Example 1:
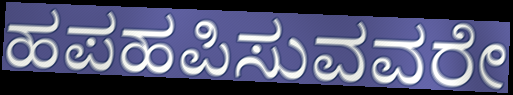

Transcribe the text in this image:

ಹಪಹಪಿಸುವವರೇ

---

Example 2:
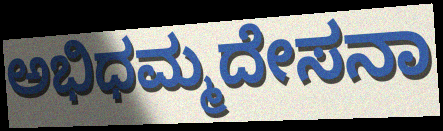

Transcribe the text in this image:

ಅಭಿಧಮ್ಮದೇಸನಾ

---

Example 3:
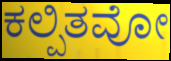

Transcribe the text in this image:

ಕಲ್ಪಿತವೋ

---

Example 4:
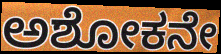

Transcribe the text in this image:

ಅಶೋಕನೇ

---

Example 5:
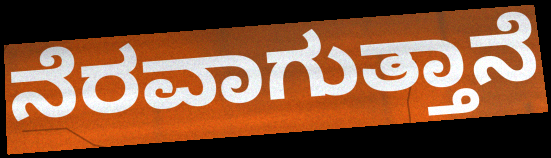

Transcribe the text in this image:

ನೆರವಾಗುತ್ತಾನೆ